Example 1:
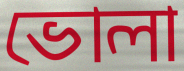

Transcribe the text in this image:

ভোলা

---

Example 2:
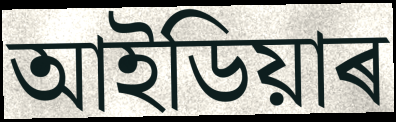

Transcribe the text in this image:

আইডিয়াৰ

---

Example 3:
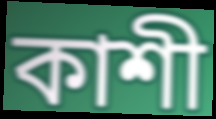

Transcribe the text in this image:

কাশী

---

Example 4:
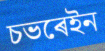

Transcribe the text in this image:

চভৰেইন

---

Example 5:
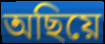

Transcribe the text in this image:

অছিয়ে